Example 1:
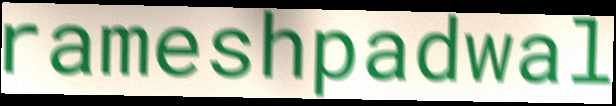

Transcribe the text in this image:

rameshpadwal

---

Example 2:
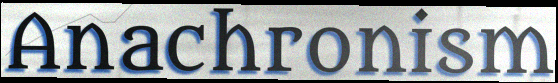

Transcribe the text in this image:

Anachronism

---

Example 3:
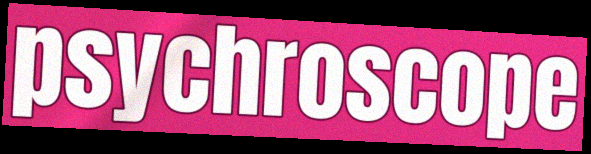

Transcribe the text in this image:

psychroscope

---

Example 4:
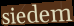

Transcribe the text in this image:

siedem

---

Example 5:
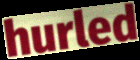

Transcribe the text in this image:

hurled